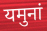
यमुनां